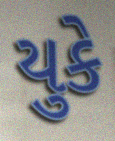
યુકે